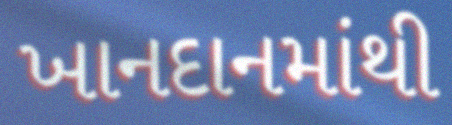
ખાનદાનમાંથી